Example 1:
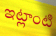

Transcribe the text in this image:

ఇట్లాంటి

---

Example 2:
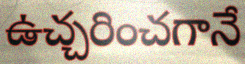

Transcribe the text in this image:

ఉచ్చరించగానే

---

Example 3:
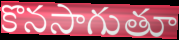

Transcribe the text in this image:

కొనసాగుతూ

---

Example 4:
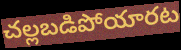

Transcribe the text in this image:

చల్లబడిపోయారట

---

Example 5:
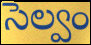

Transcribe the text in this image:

సెల్వం